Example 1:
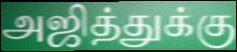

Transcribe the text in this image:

அஜித்துக்கு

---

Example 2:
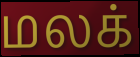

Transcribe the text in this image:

மலக்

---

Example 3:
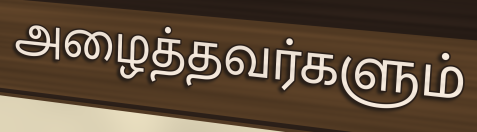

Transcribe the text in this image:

அழைத்தவர்களும்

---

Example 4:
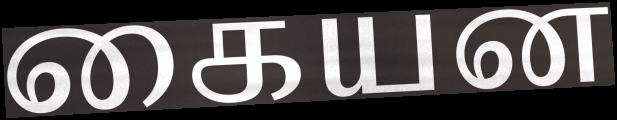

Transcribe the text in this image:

கையன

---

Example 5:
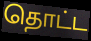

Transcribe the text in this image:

தொட்ட